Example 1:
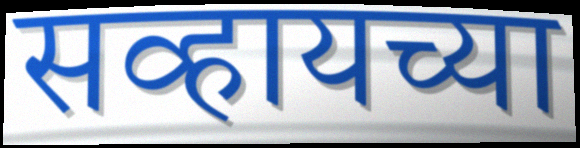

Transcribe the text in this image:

सव्हायच्या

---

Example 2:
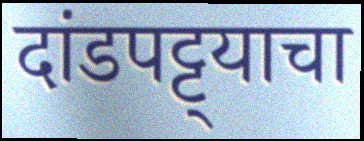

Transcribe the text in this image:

दांडपट्ट्याचा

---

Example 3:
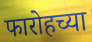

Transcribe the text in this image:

फारोहच्या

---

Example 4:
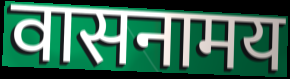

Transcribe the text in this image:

वासनामय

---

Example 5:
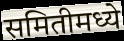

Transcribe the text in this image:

समितीमध्ये